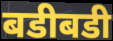
बडीबडी